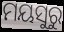
ମୟସୁରୁ